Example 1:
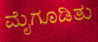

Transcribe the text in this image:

ಮೈಗೂಡಿತು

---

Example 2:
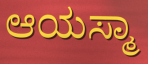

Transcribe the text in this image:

ಆಯಸ್ಮಾ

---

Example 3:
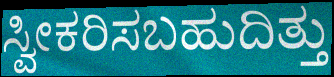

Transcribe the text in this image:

ಸ್ವೀಕರಿಸಬಹುದಿತ್ತು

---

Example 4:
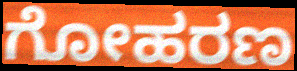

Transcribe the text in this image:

ಗೋಹರಣ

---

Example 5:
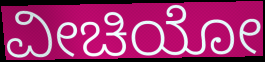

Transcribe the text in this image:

ವೀಚಿಯೋ